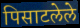
पिसाटलेले